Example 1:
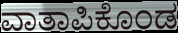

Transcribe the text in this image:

ವಾತಾಪಿಕೊಂಡ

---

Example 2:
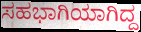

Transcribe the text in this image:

ಸಹಭಾಗಿಯಾಗಿದ್ದ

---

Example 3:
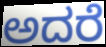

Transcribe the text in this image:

ಅದರೆ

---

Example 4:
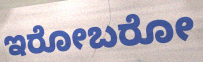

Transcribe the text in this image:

ಇರೋಬರೋ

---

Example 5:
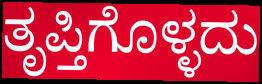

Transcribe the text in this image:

ತೃಪ್ತಿಗೊಳ್ಳದು